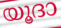
യൂദാ